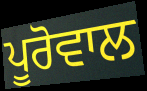
ਪੂਰੋਵਾਲ